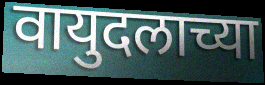
वायुदलाच्या